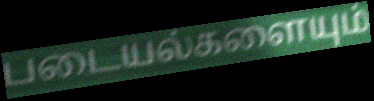
படையல்களையும்